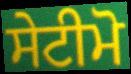
ਸੇਟੀਮੋ